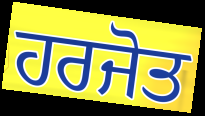
ਹਰਜੋਤ